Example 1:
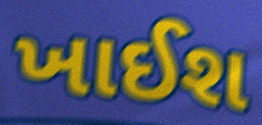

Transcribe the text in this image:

ખાઈશ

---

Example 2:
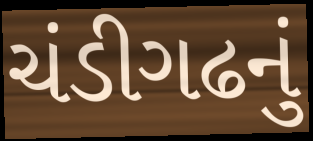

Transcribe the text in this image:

ચંડીગઢનું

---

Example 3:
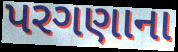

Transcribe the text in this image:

પરગણાના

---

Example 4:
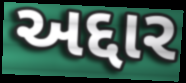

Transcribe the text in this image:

અદ્દાર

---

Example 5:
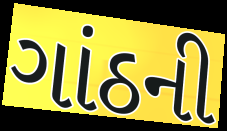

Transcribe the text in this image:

ગાંઠની